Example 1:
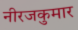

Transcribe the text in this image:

नीरजकुमार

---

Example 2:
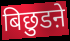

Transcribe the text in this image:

बिछुडऩे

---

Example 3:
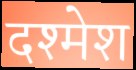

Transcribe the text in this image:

दश्मेश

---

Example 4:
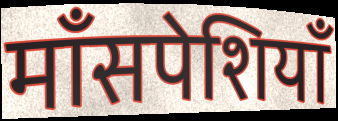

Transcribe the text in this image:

माँसपेशियाँ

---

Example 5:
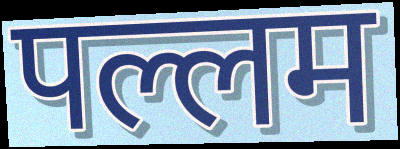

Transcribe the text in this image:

पल्लम